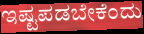
ಇಷ್ಟಪಡಬೇಕೆಂದು